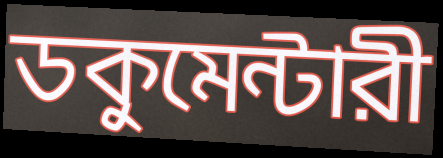
ডকুমেন্টারী